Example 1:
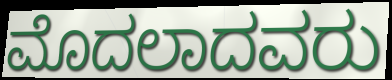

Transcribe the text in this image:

ಮೊದಲಾದವರು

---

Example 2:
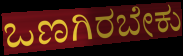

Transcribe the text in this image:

ಒಣಗಿರಬೇಕು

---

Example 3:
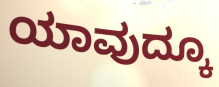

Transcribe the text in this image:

ಯಾವುದ್ಕೂ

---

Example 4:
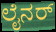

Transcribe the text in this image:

ಲೈನರ್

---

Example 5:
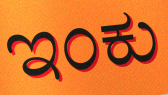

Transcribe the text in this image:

ಇಂಕು